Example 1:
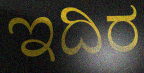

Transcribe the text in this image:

ಇದಿರ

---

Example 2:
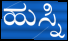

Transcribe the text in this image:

ಹುಸ್ನಿ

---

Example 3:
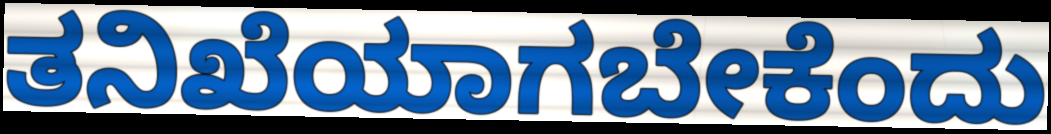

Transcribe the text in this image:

ತನಿಖೆಯಾಗಬೇಕೆಂದು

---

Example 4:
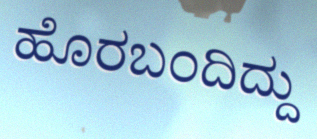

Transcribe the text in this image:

ಹೊರಬಂದಿದ್ದು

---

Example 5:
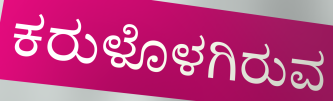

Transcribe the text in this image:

ಕರುಳೊಳಗಿರುವ